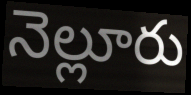
నెల్లూరు